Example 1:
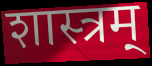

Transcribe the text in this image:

शास्त्रम्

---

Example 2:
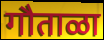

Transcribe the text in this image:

गौताळा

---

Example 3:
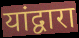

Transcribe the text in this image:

यांद्वारा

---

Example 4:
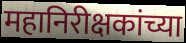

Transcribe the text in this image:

महानिरीक्षकांच्या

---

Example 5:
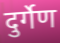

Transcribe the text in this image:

दुर्गेण